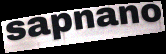
sapnano